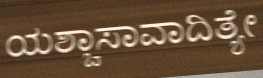
ಯಶ್ಚಾಸಾವಾದಿತ್ಯೇ